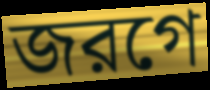
জরগে